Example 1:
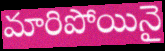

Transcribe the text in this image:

మారిపోయినై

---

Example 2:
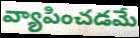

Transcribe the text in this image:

వ్యాపించడమే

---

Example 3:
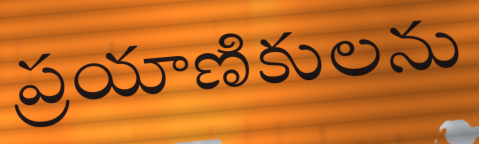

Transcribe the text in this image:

ప్రయాణికులను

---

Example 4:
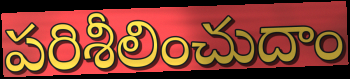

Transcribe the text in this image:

పరిశీలించుదాం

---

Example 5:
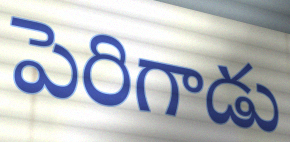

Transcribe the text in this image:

పెరిగాడు